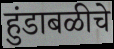
हुंडाबळीचे